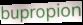
bupropion